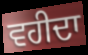
ਵਹੀਦਾ